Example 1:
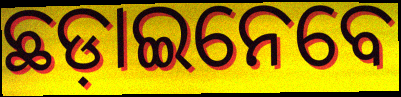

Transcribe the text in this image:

ଛଡ଼ାଇନେବେ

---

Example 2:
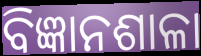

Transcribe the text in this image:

ବିଜ୍ଞାନଶାଳା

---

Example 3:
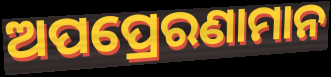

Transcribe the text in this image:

ଅପପ୍ରେରଣାମାନ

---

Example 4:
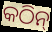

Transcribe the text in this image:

କଠିନ୍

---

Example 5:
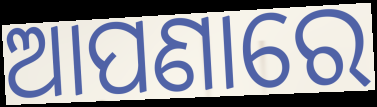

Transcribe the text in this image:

ଆପଣାରେ